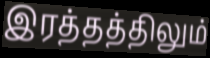
இரத்தத்திலும்